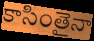
కాసింతైనా